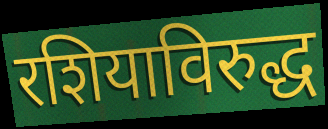
रशियाविरुद्ध